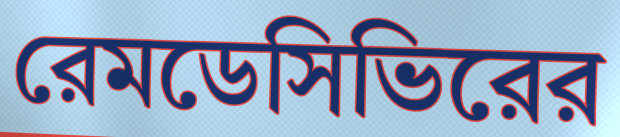
রেমডেসিভিরের